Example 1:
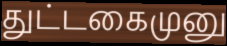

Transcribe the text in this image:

துட்டகைமுனு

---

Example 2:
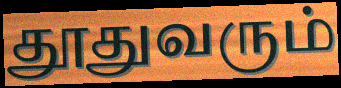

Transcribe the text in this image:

தூதுவரும்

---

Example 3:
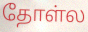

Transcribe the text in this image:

தோள்ல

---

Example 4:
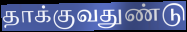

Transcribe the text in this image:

தாக்குவதுண்டு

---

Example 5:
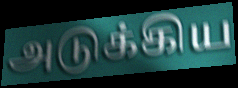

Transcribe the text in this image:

அடுக்கிய